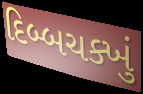
દિબ્બચક્ખું